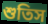
শুতিস